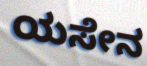
ಯಸೇನ